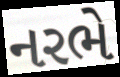
નરભે